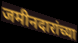
जमीनदारांच्या